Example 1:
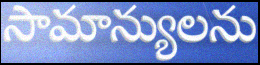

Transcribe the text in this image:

సామాన్యులను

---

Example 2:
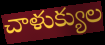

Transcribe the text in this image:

చాళుక్యుల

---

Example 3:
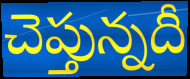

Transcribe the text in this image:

చెప్తున్నదీ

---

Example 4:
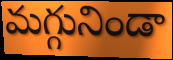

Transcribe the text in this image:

మగ్గునిండా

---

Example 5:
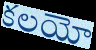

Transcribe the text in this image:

కలయో